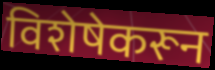
विशेषेकरून